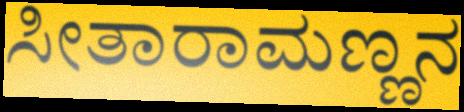
ಸೀತಾರಾಮಣ್ಣನ